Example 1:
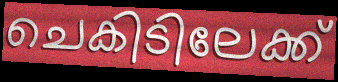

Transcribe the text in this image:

ചെകിടിലേക്ക്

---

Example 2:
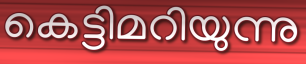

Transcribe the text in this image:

കെട്ടിമറിയുന്നു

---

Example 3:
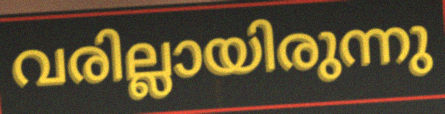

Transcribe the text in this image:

വരില്ലായിരുന്നു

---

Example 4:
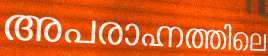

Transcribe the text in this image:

അപരാഹ്നത്തിലെ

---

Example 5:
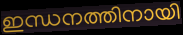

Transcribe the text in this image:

ഇന്ധനത്തിനായി